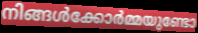
നിങ്ങൾക്കോർമ്മയുണ്ടോ